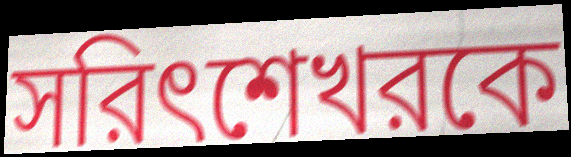
সরিৎশেখরকে